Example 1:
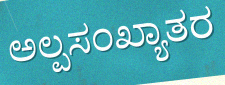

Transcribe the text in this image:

ಅಲ್ಪಸಂಖ್ಯಾತರ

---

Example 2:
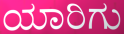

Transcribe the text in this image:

ಯಾರಿಗು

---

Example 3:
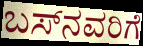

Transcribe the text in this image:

ಬಸ್‌ನವರಿಗೆ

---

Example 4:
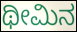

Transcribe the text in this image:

ಥೀಮಿನ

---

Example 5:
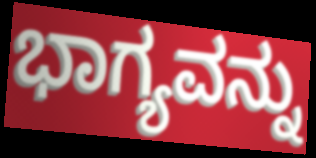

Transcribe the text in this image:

ಭಾಗ್ಯವನ್ನು